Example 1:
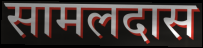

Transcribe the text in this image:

सामलदास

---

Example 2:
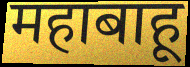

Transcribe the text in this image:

महाबाहू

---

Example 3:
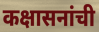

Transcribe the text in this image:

कक्षासनांची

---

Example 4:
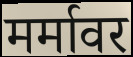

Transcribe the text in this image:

मर्मावर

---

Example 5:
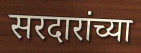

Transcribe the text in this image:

सरदारांच्या